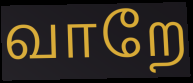
வாறே